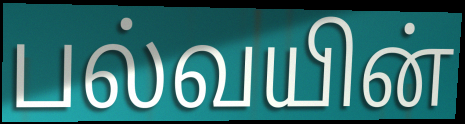
பல்வயின்